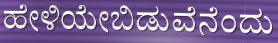
ಹೇಳಿಯೇಬಿಡುವೆನೆಂದು